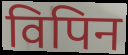
विपिन